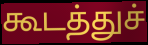
கூடத்துச்